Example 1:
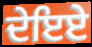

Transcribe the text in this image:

ਦੇਇਏ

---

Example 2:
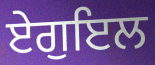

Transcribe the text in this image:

ਏਗੁਇਲ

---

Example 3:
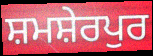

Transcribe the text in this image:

ਸ਼ਮਸ਼ੇਰਪੁਰ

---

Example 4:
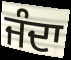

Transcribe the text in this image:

ਜੰਦਾ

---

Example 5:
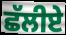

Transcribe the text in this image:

ਛੱਲੀਏ